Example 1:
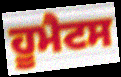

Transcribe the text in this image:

ਹੂਮੈਟਸ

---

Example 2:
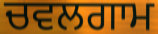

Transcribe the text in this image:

ਚਵਲਗਾਮ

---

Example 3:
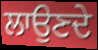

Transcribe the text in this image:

ਲਾਉਣਦੇ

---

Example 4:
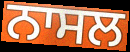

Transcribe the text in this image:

ਨਾਸਲ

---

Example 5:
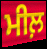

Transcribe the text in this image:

ਮੀਲ਼